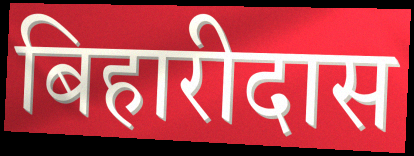
बिहारीदास